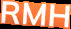
RMH